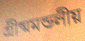
গ্রীষ্মমন্ডলীয়